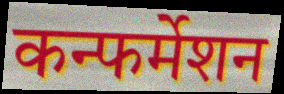
कन्‍फर्मेशन